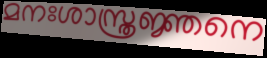
മനഃശാസ്ത്രജ്ഞനെ